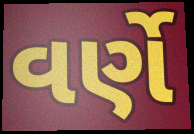
વર્ણે